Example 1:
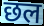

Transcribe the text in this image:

छल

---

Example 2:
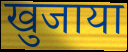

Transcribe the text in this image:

खुजाया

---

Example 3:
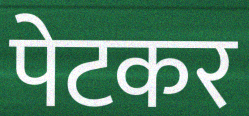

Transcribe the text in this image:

पेटकर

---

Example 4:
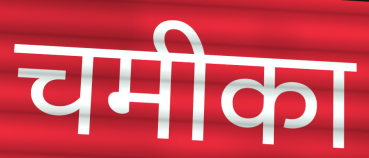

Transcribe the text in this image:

चमीका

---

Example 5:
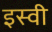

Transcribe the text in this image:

इस्वी